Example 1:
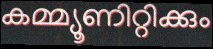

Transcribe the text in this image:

കമ്മ്യൂണിറ്റിക്കും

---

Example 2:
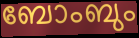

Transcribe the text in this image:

ബോംബും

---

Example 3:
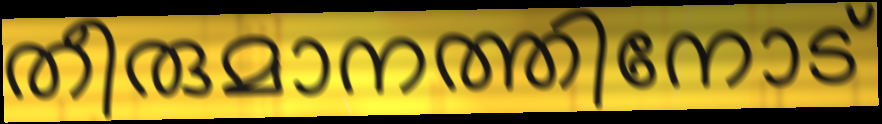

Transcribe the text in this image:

തീരുമാനത്തിനോട്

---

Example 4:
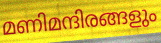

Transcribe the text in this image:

മണിമന്ദിരങ്ങളും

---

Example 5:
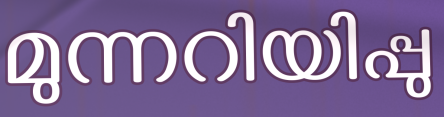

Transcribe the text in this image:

മുന്നറിയിപ്പു